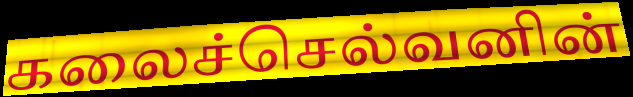
கலைச்செல்வனின்